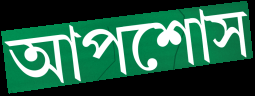
আপশোস